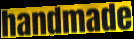
handmade